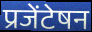
प्रजेंटेषन